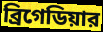
ব্রিগেডিয়ার